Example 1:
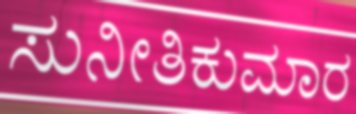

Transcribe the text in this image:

ಸುನೀತಿಕುಮಾರ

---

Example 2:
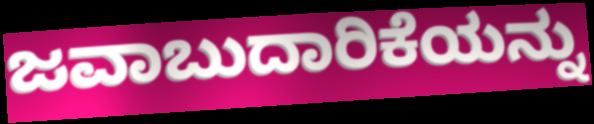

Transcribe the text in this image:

ಜವಾಬುದಾರಿಕೆಯನ್ನು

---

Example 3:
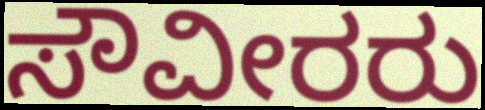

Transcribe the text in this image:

ಸೌವೀರರು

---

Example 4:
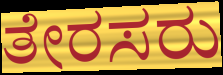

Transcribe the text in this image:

ತೇರಸರು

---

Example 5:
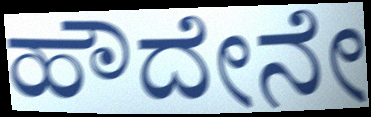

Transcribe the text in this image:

ಹೌದೇನೇ